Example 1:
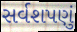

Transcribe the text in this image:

સર્વશપણું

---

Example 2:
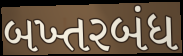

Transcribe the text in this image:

બખ્તરબંધ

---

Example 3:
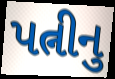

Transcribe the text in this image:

પત્નીનુ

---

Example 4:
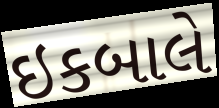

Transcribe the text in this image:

ઇકબાલે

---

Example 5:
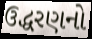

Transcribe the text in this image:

ઉદ્ધરણનો